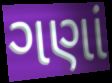
ગણાં